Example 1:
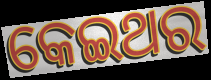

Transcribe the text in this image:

କେଇଥର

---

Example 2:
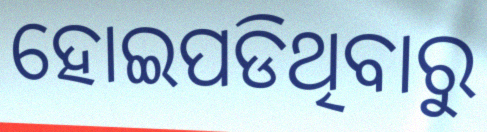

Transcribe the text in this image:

ହୋଇପଡିଥିବାରୁ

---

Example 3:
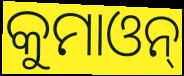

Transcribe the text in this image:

କୁମାଓନ୍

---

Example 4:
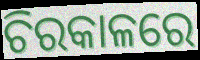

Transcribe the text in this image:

ଚିରକାଳରେ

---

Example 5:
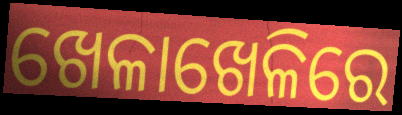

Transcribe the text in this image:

ଖେଳାଖେଳିରେ